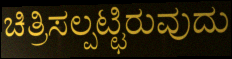
ಚಿತ್ರಿಸಲ್ಪಟ್ಟಿರುವುದು